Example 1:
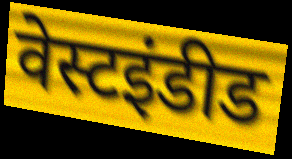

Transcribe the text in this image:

वेस्टइंडीड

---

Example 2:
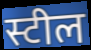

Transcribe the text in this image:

स्टील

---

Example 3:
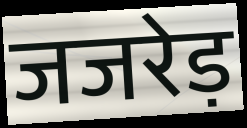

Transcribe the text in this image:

जजरेड़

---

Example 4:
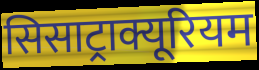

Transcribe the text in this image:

सिसाट्राक्यूरियम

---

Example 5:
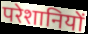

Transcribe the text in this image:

परेशानियों